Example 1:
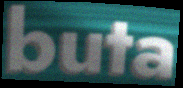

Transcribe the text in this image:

buta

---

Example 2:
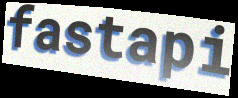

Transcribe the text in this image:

fastapi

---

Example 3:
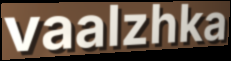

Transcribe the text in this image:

vaalzhka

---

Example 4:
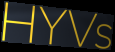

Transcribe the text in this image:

HYVs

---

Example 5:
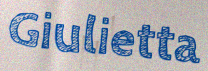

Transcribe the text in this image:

Giulietta